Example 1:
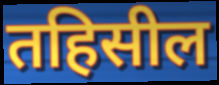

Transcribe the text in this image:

तहिसील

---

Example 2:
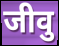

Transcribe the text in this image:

जीवु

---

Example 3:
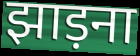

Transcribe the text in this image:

झाड़ना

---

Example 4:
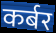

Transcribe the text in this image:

कर्बर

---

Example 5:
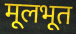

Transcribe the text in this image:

मूलभूत